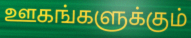
ஊகங்களுக்கும்